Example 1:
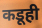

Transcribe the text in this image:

कडूही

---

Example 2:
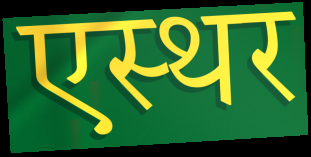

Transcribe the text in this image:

एस्थर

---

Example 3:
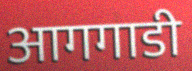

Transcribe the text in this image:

आगगाडी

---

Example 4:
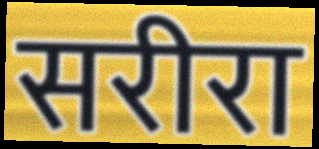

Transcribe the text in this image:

सरीरा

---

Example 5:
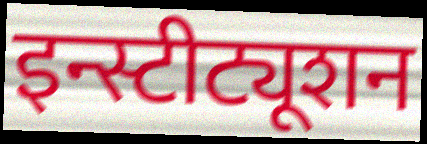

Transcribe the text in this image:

इन्स्टीट्यूशन